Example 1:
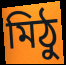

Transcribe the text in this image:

মিঠু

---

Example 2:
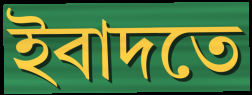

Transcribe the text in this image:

ইবাদতে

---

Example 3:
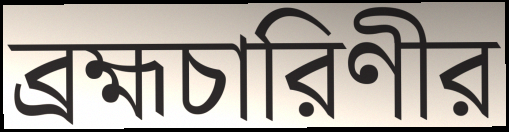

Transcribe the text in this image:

ব্রহ্মচারিণীর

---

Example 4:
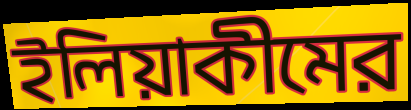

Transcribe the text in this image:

ইলিয়াকীমের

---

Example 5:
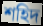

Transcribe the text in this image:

শহিদ